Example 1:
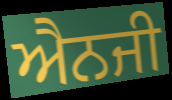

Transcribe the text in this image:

ਐਨਜੀ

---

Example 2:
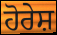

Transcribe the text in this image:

ਹੋਰੇਸ਼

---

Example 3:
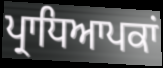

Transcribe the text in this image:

ਪ੍ਰਾਧਿਆਪਕਾਂ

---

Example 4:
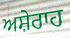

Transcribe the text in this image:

ਅਸ਼ੇਰਾਹ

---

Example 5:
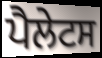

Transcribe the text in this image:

ਪੈਲੇਟਸ